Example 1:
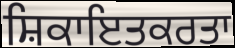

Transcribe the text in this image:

ਸ਼ਿਕਾਇਤਕਰਤਾ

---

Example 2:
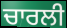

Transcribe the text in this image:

ਚਾਰਲੀ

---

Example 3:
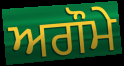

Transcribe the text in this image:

ਅਗੌਮੇ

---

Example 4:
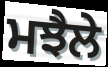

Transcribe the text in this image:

ਮਝੈਲੇ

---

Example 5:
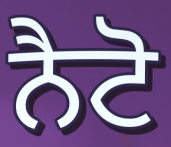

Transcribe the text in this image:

ਨੈਟੋ